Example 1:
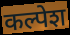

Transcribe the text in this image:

कल्पेश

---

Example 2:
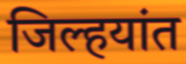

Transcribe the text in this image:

जिल्हयांत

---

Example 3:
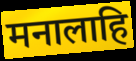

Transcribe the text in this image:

मनालाहि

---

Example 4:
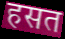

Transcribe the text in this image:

हसत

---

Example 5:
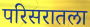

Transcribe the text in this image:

परिसरातला